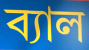
ব্যাল